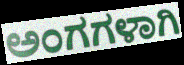
ಅಂಗಗಳಾಗಿ